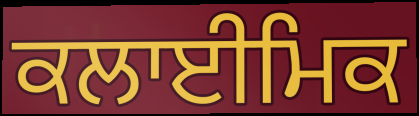
ਕਲਾਈਮਿਕ